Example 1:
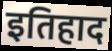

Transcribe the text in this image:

इतिहाद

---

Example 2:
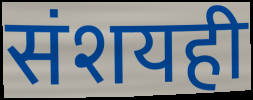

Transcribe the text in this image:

संशयही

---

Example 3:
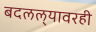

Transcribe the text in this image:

बदलल्यावरही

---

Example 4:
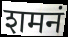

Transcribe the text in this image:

शमनं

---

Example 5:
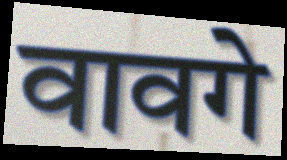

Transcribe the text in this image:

वावगे